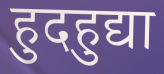
हुदहुद्या